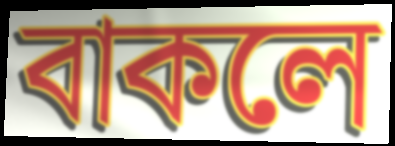
বাকলে